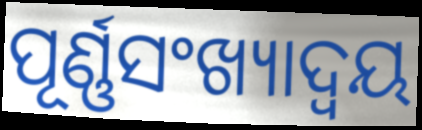
ପୂର୍ଣ୍ଣସଂଖ୍ୟାଦ୍ଵୟ